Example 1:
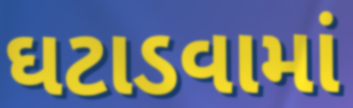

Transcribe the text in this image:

ઘટાડવામાં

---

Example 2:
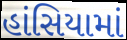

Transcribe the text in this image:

હાંસિયામાં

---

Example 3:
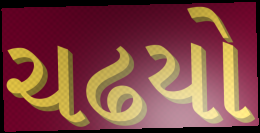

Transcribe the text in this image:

ચઢયો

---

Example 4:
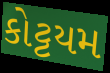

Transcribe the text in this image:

કોટ્ટયમ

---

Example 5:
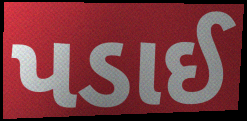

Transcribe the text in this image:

પડાઈ